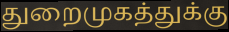
துறைமுகத்துக்கு